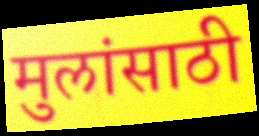
मुलांसाठी